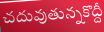
చదువుతున్నకొద్దీ